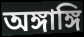
অঙ্গাঙ্গি